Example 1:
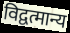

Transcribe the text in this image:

विद्वत्मान्य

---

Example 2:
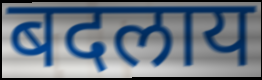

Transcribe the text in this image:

बदलाय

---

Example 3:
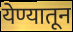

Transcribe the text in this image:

येण्यातून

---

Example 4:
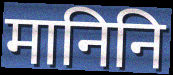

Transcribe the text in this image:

मानिनि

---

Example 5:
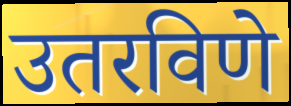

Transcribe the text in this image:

उतरविणे